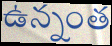
ఉన్నంత